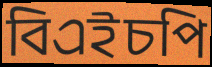
বিএইচপি